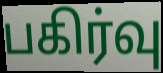
பகிர்வு